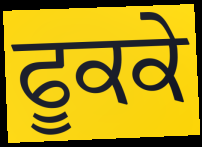
ਫੂਕਕੇ